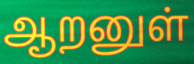
ஆறனுள்